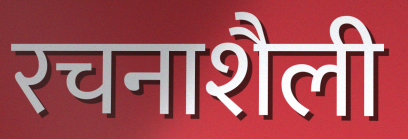
रचनाशैली